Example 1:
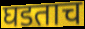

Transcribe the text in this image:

घडताच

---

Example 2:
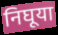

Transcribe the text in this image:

निघूया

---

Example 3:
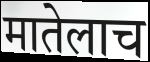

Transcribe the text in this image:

मातेलाच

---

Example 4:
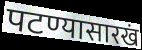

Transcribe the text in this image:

पटण्यासारखं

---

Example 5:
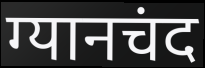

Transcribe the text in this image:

ग्यानचंद